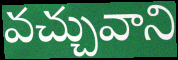
వచ్చువాని